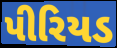
પીરિયડ